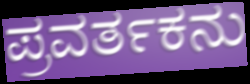
ಪ್ರವರ್ತಕನು